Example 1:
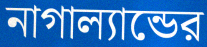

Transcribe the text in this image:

নাগাল্যান্ডের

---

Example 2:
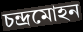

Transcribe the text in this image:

চন্দ্রমোহন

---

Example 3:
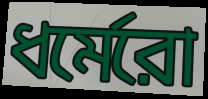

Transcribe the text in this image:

ধর্মেরো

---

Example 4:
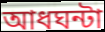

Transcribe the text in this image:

আধঘন্টা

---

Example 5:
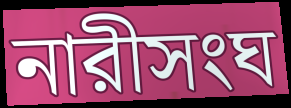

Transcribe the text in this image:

নারীসংঘ